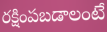
రక్షింపబడాలంటే